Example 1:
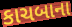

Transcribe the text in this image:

કાચબાના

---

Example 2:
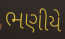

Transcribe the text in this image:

ભણીયે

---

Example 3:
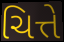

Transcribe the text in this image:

ચિત્તે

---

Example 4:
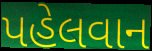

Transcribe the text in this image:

પહેલવાન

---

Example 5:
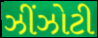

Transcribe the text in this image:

ઝીંઝોટી